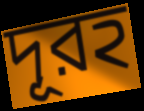
দূরহ